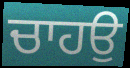
ਚਾਹਉ